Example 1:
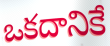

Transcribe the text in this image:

ఒకదానికే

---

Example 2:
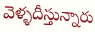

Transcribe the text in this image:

వెళ్ళదీస్తున్నారు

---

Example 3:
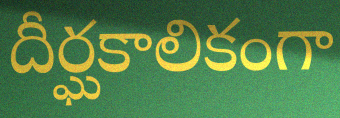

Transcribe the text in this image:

దీర్ఘకాలికంగా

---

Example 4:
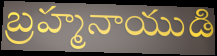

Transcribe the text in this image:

బ్రహ్మనాయుడి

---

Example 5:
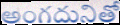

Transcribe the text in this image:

అంగదునితో